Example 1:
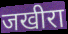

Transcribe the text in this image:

जखीरा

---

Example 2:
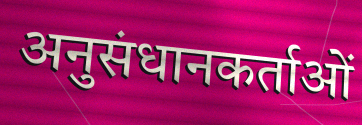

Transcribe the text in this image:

अनुसंधानकर्ताओं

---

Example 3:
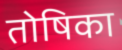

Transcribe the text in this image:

तोषिका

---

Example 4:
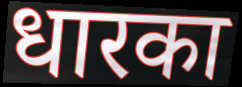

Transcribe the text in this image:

धारका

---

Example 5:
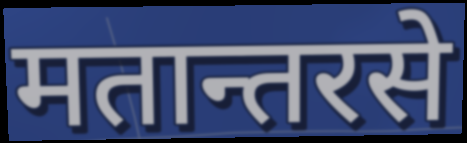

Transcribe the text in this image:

मतान्तरसे